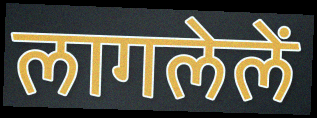
लागलेलें